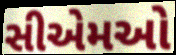
સીએમઓ